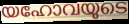
യഹോവയുടെ